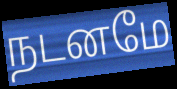
நடனமே